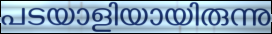
പടയാളിയായിരുന്നു